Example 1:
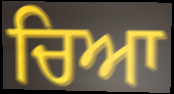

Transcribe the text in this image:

ਚਿਆ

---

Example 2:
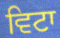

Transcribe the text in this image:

ਵਿਟਾ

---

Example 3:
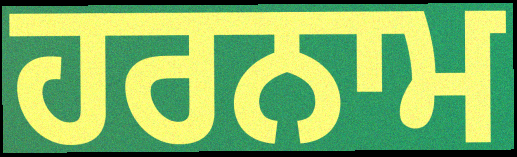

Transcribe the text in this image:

ਹਰਨਾਮ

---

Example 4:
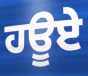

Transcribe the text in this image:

ਹਊਏ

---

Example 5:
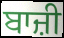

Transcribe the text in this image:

ਬਾਜ਼ੀ